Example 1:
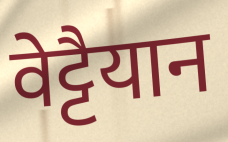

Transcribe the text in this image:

वेट्टैयान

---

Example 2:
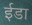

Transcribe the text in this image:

ईडा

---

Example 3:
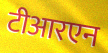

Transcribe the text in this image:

टीआरएन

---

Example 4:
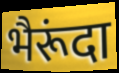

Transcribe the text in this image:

भैरूंदा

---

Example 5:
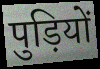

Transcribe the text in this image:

पुड़ियों